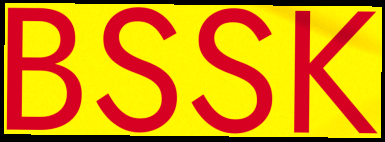
BSSK